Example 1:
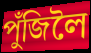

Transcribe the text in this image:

পুঁজিলৈ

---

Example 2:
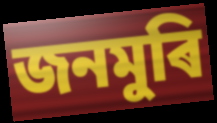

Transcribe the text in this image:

জনমুৰি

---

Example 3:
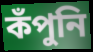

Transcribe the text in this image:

কঁপুনি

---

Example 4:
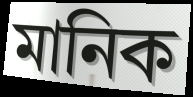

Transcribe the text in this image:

মানিক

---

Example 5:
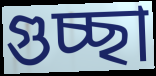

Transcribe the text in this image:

গুচ্ছা